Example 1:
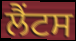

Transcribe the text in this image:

ਲੈਂਟਸ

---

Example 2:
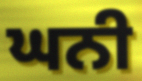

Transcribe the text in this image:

ਘਨੀ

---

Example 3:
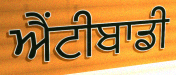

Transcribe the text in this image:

ਐਂਟੀਬਾਡੀ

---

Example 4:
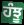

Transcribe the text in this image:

ਹੰਝੂ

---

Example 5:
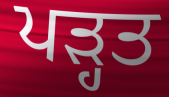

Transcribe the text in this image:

ਪਡ਼੍ਹਤ